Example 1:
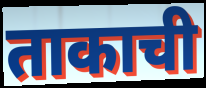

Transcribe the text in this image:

ताकाची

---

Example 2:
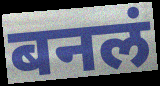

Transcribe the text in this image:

बनलं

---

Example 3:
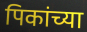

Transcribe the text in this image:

पिकांच्या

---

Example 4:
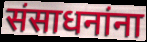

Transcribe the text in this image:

संसाधनांना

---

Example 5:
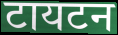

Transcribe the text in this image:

टायटन